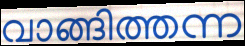
വാങ്ങിത്തന്ന